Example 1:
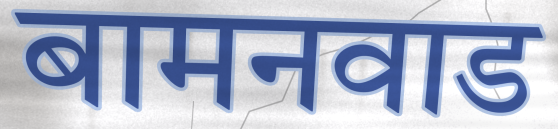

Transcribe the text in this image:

बामनवाड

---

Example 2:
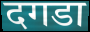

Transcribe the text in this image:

दगडा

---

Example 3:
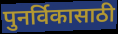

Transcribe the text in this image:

पुनर्विकासाठी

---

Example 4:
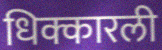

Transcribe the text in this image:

धिक्कारली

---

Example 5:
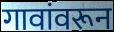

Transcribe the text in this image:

गावांवरून